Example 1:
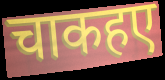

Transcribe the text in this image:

चाकहए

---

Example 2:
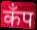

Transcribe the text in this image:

कॅंप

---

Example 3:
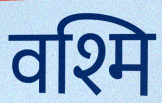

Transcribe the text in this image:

वश्मि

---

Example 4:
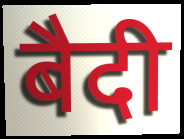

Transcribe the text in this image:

बैदी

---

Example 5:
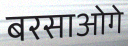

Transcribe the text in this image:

बरसाओगे